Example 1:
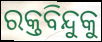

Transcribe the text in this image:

ରକ୍ତବିନ୍ଦୁକୁ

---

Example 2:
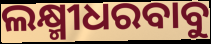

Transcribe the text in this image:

ଲକ୍ଷ୍ମୀଧରବାବୁ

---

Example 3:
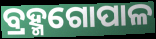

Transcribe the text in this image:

ବ୍ରହ୍ମଗୋପାଳ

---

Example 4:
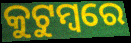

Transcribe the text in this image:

କୁଟୁମ୍ଵରେ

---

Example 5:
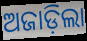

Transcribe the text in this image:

ଅଜାଡ଼ିଲା